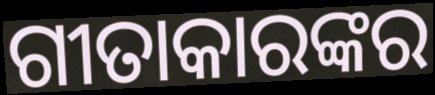
ଗୀତାକାରଙ୍କର